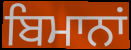
ਬਿਮਾਨਾਂ